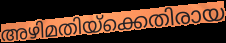
അഴിമതിയ്ക്കെതിരായ